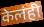
केलंही